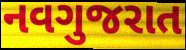
નવગુજરાત